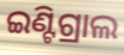
ଇଣ୍ଟିଗ୍ରାଲ